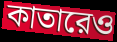
কাতারেও